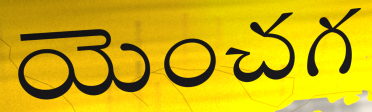
యెంచగ